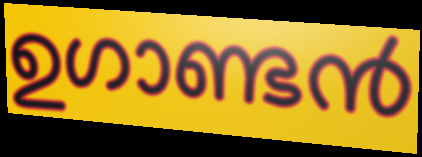
ഉഗാണ്ടൻ